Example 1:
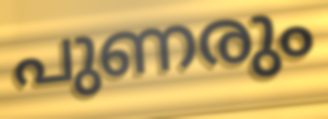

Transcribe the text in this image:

പുണരും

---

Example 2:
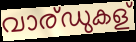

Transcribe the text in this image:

വാര്ഡുകള്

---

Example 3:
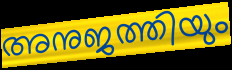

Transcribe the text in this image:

അനുജത്തിയും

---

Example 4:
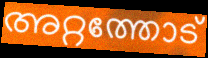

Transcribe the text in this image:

അറ്റത്തോട്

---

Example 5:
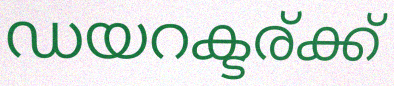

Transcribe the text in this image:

ഡയറക്ടര്ക്ക്